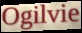
Ogilvie